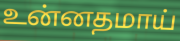
உன்னதமாய்